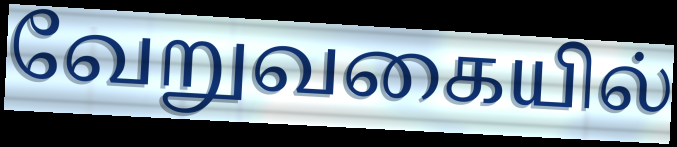
வேறுவகையில்